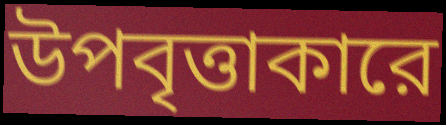
উপবৃত্তাকারে